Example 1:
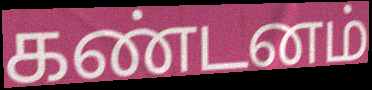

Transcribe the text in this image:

கண்டனம்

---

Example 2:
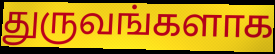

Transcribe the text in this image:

துருவங்களாக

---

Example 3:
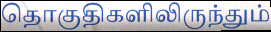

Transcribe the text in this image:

தொகுதிகளிலிருந்தும்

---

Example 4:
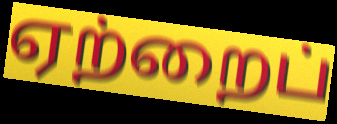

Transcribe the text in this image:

ஏற்றைப்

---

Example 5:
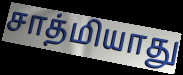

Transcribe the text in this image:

சாத்மியாது